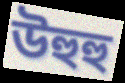
উহুহু